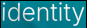
identity